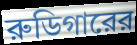
রুডিগারের